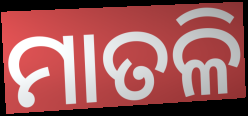
ମାତଳି